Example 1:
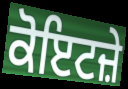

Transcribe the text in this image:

ਕੋਇਟਜ਼ੇ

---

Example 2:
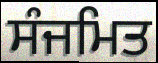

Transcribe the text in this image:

ਸੰਜਮਿਤ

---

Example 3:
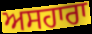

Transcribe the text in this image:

ਅਸਹਾਰਾ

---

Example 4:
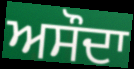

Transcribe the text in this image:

ਅਸੌਦਾ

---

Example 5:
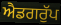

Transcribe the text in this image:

ਐਡਗਰੁੱਪ